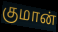
குமான்